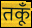
तकूँ